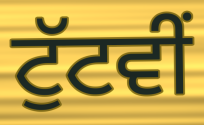
ਟੁੱਟਵੀਂ